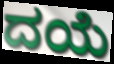
ದಯೆ